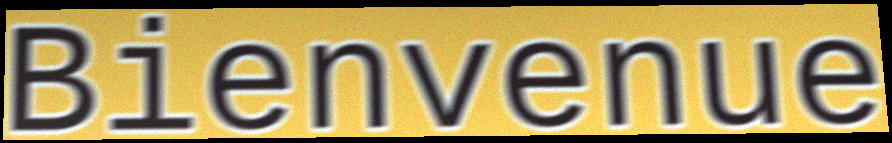
Bienvenue